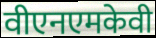
वीएनएमकेवी